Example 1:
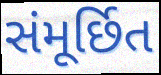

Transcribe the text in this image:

સંમૂર્છિત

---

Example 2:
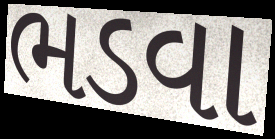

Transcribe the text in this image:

ભડવા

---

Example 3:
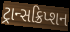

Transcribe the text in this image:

ટ્રાન્સક્રિપ્શન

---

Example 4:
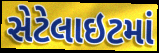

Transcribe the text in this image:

સેટેલાઇટમાં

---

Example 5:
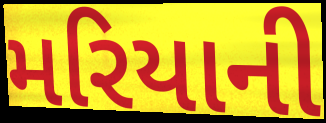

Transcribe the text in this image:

મરિયાની